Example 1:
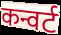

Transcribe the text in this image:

कन्वर्ट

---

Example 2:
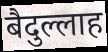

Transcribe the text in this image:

बैदुल्लाह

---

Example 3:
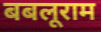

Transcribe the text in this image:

बबलूराम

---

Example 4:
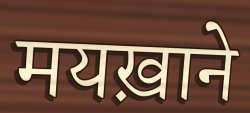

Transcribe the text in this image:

मयख़ाने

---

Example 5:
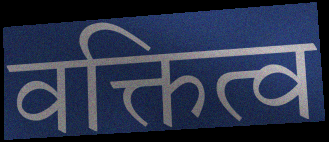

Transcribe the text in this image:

वक्तित्व